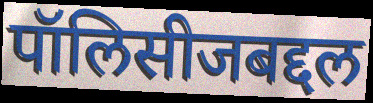
पॉलिसीजबद्दल